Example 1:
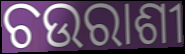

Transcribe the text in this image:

ଚଉରାଶୀ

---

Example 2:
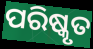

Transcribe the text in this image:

ପରିଷ୍କୃତ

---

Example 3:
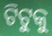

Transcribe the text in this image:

ଟିଟୁକୁ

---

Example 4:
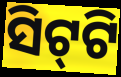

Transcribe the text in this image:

ସିଟ୍‌ଟି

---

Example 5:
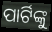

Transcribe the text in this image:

ପାର୍ଟିଙ୍କୁ